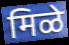
मिळे